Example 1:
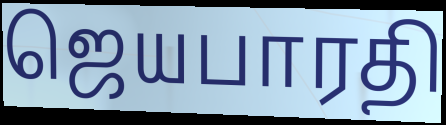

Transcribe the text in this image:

ஜெயபாரதி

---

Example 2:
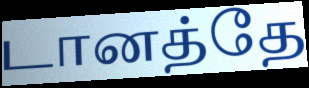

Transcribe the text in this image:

டானத்தே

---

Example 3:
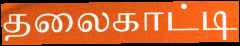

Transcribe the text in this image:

தலைகாட்டி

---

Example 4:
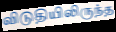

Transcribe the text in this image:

விடுதியிலிருந்த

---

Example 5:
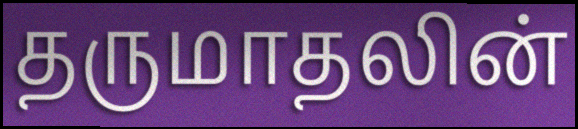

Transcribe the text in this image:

தருமாதலின்